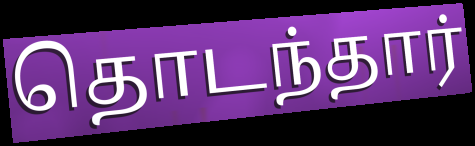
தொடந்தார்